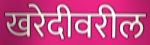
खरेदीवरील